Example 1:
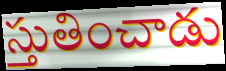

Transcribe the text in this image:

స్తుతించాడు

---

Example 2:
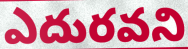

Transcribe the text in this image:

ఎదురవని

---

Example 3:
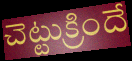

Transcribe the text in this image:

చెట్టుక్రిందే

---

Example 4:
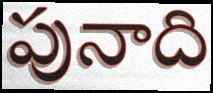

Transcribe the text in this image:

పునాది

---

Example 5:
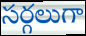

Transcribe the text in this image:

సర్గలుగా